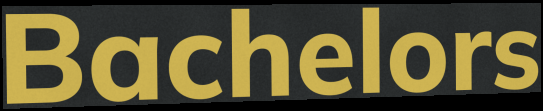
Bachelors